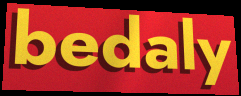
bedaly